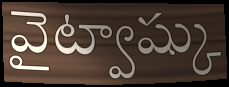
వైట్వాష్కు